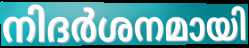
നിദർശനമായി